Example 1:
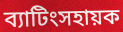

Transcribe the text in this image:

ব্যাটিংসহায়ক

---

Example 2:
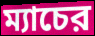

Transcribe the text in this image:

ম্যাচের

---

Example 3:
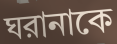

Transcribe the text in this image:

ঘরানাকে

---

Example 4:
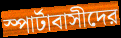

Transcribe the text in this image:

স্পার্টাবাসীদের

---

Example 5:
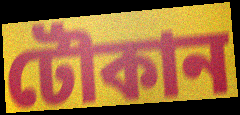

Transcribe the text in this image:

টৌকান